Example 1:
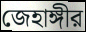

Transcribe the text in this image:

জেহাঙ্গীর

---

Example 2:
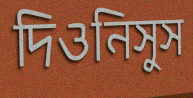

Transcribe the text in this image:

দিওনিসুস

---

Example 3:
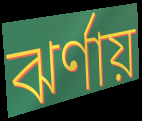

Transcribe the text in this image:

ঝর্ণায়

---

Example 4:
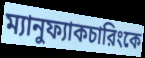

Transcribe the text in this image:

ম্যানুফ্যাকচারিংকে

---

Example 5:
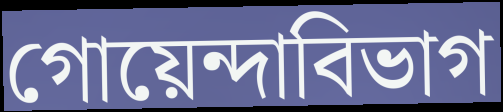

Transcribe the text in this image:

গোয়েন্দাবিভাগ